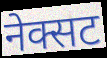
नेक्सट